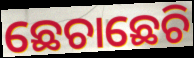
ଛେଚାଛେଚି